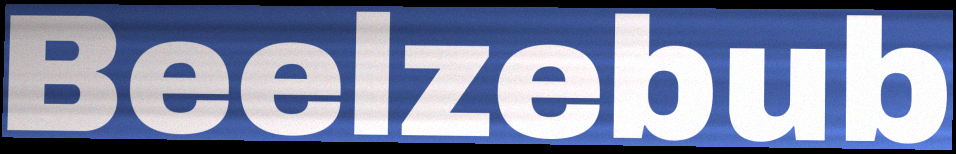
Beelzebub